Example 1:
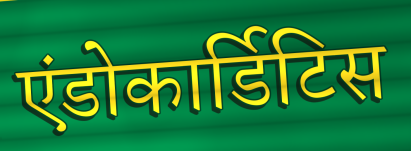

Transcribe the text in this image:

एंडोकार्डिटिस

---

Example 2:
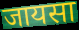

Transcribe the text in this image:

जायसा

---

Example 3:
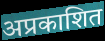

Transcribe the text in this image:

अप्रकाशित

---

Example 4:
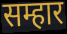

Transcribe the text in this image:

सम्हार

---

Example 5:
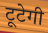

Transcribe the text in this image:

टूटेगी